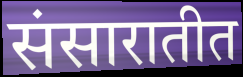
संसारातीत